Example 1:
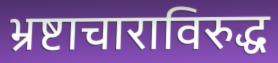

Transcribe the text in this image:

भ्रष्टाचाराविरुद्ध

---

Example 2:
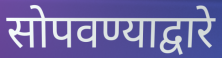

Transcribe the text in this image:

सोपवण्याद्वारे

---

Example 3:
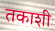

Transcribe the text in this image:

तकाशी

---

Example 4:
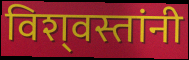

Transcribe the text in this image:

विश्वस्तांनी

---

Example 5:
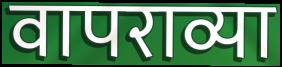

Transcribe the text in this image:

वापराव्या